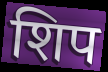
शिप